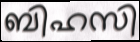
ബിഹസി